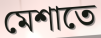
মেশাতে